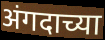
अंगदाच्या